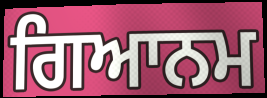
ਗਿਆਨਮ